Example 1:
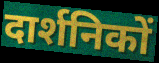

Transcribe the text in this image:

दार्शनिकों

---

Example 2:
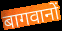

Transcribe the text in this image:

बागवानों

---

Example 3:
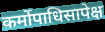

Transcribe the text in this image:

कर्मोपाधिसापेक्ष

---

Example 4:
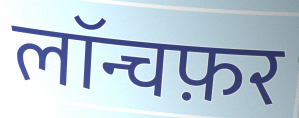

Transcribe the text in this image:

लॉन्चफ़र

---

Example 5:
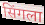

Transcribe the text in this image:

सिंगला